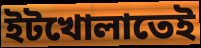
ইটখোলাতেই